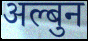
अल्बुन